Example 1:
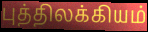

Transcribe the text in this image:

புத்திலக்கியம்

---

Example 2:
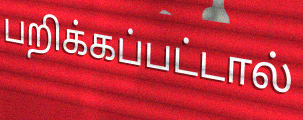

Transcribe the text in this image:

பறிக்கப்பட்டால்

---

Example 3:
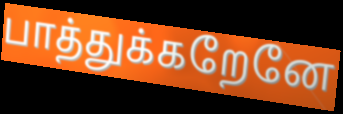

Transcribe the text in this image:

பாத்துக்கறேனே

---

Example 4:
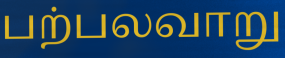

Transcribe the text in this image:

பற்பலவாறு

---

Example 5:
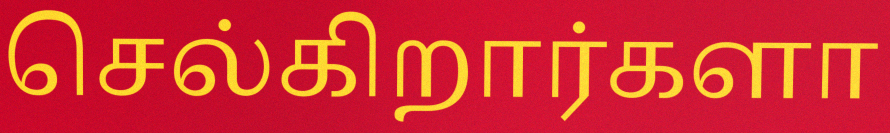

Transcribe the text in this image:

செல்கிறார்களா